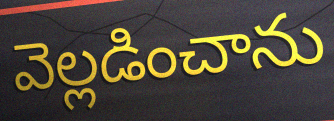
వెల్లడించాను